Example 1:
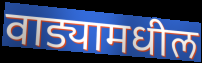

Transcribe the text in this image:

वाड्यामधील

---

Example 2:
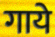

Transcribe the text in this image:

गाये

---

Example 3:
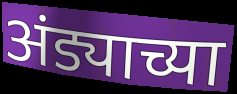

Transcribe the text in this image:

अंड्याच्या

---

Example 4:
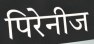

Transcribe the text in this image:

पिरेनीज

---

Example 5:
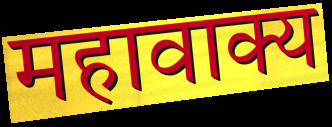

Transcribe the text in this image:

महावाक्य